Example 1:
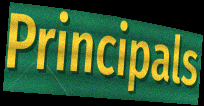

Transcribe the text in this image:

Principals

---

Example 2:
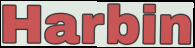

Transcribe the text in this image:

Harbin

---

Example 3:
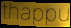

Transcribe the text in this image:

thappu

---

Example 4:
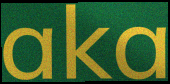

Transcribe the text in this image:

aka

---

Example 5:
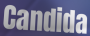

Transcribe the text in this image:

Candida